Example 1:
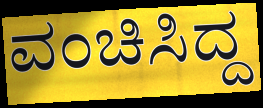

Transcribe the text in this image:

ವಂಚಿಸಿದ್ದ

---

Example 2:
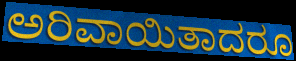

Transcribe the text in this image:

ಅರಿವಾಯಿತಾದರೂ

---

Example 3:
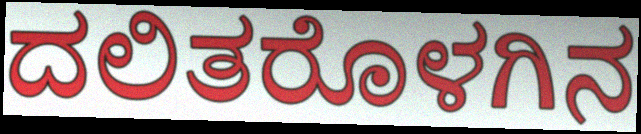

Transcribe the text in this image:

ದಲಿತರೊಳಗಿನ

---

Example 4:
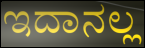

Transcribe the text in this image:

ಇದಾನಲ್ಲ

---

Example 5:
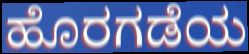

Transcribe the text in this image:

ಹೊರಗಡೆಯ